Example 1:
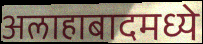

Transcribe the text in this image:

अलाहाबादमध्ये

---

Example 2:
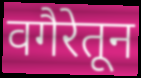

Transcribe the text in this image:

वगैरेतून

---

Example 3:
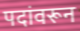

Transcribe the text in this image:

पदांवरून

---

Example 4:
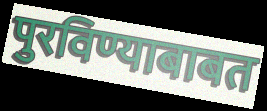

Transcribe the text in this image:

पुरविण्याबाबत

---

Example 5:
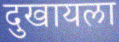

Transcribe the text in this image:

दुखायला